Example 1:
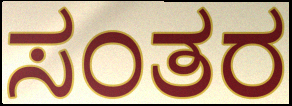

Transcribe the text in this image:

ಸಂತರ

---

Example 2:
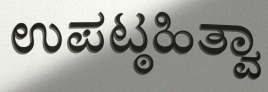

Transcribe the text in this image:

ಉಪಟ್ಠಹಿತ್ವಾ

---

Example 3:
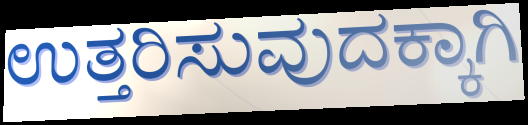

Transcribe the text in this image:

ಉತ್ತರಿಸುವುದಕ್ಕಾಗಿ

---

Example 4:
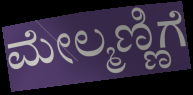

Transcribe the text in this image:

ಮೇಲ್ಮಣ್ಣಿಗೆ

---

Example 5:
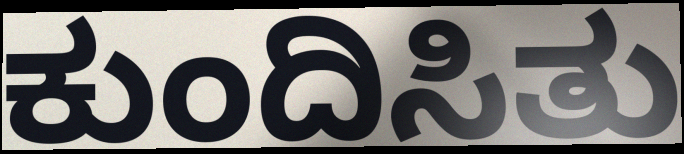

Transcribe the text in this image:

ಕುಂದಿಸಿತು